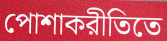
পোশাকরীতিতে